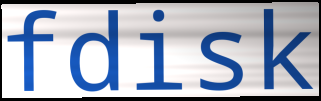
fdisk